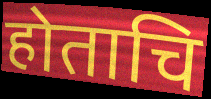
होताचि